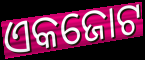
ଏକଜୋଟ